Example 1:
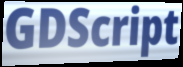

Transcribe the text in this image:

GDScript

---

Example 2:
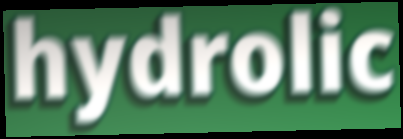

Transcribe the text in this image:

hydrolic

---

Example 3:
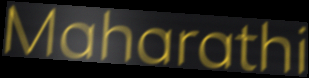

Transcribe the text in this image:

Maharathi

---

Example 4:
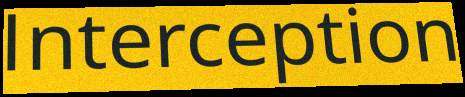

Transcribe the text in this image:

Interception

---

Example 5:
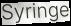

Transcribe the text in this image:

Syringe